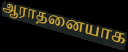
ஆராதனையாக